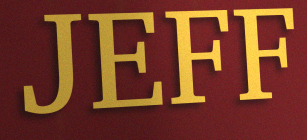
JEFF